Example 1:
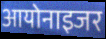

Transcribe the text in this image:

आयोनाइजर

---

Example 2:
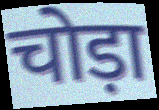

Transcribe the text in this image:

चोड़ा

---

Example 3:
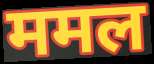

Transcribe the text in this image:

ममल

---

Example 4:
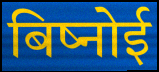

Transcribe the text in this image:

बिष्नोई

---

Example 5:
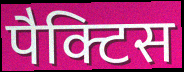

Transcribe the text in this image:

पैक्टिस